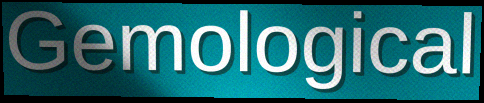
Gemological